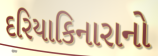
દરિયાકિનારાનો